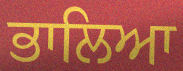
ਭਾਲਿਆ